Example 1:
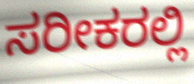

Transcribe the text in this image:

ಸರೀಕರಲ್ಲಿ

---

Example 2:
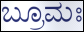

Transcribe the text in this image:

ಬ್ರೂಮಃ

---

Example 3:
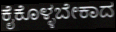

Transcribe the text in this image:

ಕೈಕೊಳ್ಳಬೇಕಾದ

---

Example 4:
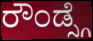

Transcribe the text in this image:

ರೌಂಡ್ಸ್ಗೆ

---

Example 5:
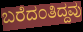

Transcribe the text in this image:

ಬರೆದಂತಿದ್ದವು